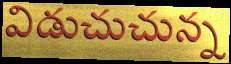
విడుచుచున్న